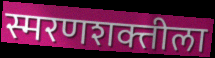
स्मरणशक्तीला